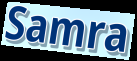
Samra